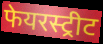
फेयरस्ट्रीट